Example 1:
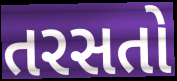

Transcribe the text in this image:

તરસતો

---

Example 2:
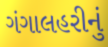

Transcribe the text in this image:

ગંગાલહરીનું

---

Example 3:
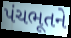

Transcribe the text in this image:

પંચભૂતને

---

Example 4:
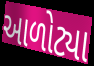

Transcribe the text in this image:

આળોટ્યા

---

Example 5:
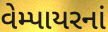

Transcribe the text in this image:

વેમ્પાયરનાં